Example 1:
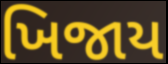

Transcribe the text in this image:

ખિજાય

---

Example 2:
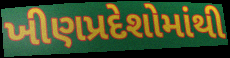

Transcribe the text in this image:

ખીણપ્રદેશોમાંથી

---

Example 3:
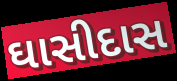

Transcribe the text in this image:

ઘાસીદાસ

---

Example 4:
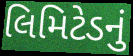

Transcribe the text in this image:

લિમિટેડનું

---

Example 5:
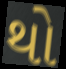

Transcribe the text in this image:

થો